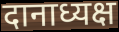
दानाध्यक्ष